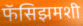
फॅसिझमशी